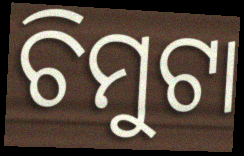
ଚିମୁଟା